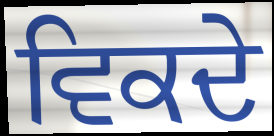
ਵਿਕਦੇ